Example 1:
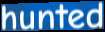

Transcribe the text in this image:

hunted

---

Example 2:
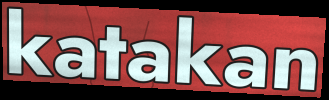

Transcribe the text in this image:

katakan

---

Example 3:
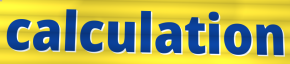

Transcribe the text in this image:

calculation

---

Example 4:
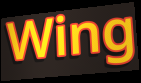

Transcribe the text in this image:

Wing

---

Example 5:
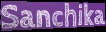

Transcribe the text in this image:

Sanchika